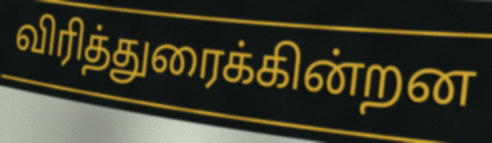
விரித்துரைக்கின்றன